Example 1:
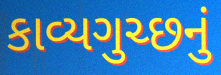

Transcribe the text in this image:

કાવ્યગુચ્છનું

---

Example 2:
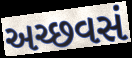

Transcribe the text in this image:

અચ્છવસં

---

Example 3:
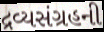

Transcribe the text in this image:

દ્રવ્યસંગ્રહની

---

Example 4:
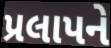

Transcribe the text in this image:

પ્રલાપને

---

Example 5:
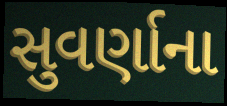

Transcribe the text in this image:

સુવર્ણાના